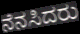
ನೆನಸಿದರು